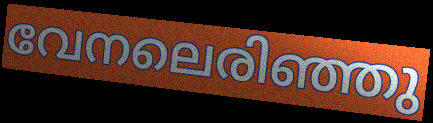
വേനലെരിഞ്ഞു